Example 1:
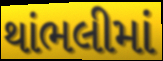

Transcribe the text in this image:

થાંભલીમાં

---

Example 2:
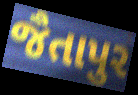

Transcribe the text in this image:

જૈતાપુર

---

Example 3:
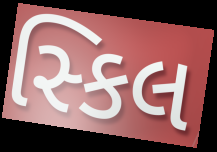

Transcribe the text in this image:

સ્કિલ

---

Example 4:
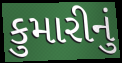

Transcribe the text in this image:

કુમારીનું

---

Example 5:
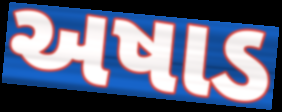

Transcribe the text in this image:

અષાડ